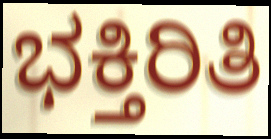
ಭಕ್ತಿರಿತಿ